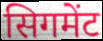
सिगमेंट